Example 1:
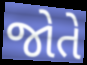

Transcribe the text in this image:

જોતે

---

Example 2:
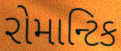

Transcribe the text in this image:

રોમાન્ટિક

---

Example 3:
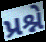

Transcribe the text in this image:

પ્રશ્ને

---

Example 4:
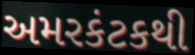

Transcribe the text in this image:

અમરકંટકથી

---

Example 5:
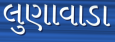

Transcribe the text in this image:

લુણાવાડા